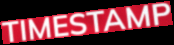
TIMESTAMP